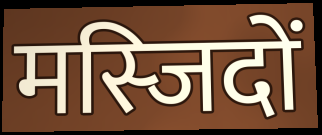
मस्‍जिदों